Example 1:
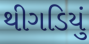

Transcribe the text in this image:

થીગડિયું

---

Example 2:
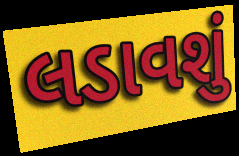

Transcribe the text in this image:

લડાવશું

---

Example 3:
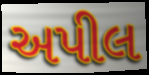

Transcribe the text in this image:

અપીલ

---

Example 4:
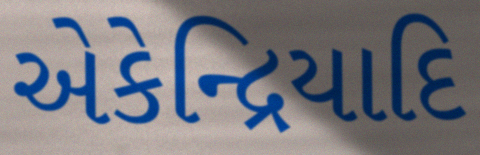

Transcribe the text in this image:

એકેન્દ્રિયાદિ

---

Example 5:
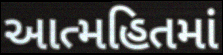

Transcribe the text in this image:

આત્મહિતમાં